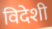
विदेशी